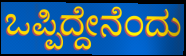
ಒಪ್ಪಿದ್ದೇನೆಂದು